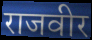
राजवीर